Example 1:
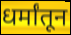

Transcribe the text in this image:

धर्मांतून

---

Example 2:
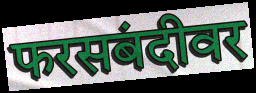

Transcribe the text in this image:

फरसबंदीवर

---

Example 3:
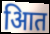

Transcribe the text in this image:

आित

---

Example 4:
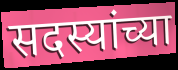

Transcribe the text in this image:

सदस्यांच्या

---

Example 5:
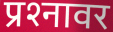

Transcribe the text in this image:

प्रश्नावर